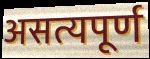
असत्यपूर्ण